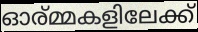
ഓര്മ്മകളിലേക്ക്